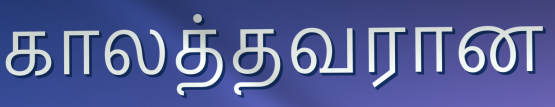
காலத்தவரான